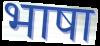
भाषा